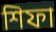
শিফা